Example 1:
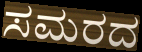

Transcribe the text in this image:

ಸಮರದ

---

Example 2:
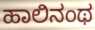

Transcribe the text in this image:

ಹಾಲಿನಂಥ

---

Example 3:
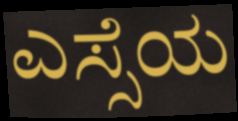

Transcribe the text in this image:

ಎಸ್ಸೆಯ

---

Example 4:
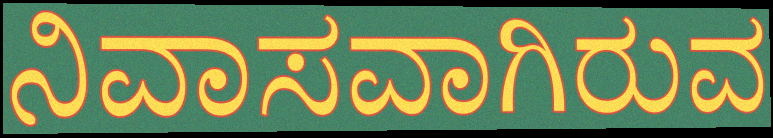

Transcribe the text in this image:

ನಿವಾಸವಾಗಿರುವ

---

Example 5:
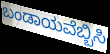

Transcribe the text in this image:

ಬಂಡಾಯವೆಬ್ಬಿಸಿ